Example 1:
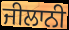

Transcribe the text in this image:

ਜੀਲਾਨੀ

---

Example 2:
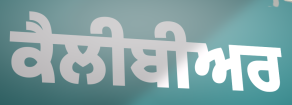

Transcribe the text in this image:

ਕੈਲੀਬੀਅਰ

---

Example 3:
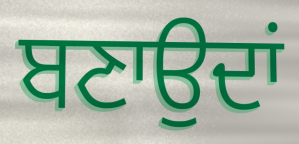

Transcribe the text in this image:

ਬਣਾਉਦਾਂ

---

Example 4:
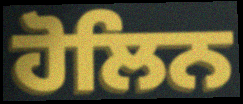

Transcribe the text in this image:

ਹੋਲਿਨ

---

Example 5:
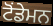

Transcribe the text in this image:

ਟੋਂਡੇਮਨ